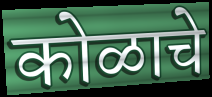
कोळाचे